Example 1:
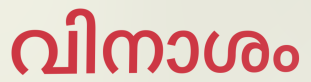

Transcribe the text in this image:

വിനാശം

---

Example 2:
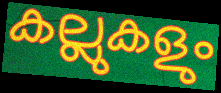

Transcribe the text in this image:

കല്ലുകളും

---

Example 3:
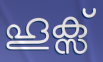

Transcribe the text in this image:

ഹൂക്സ്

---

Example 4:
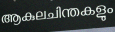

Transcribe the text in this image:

ആകുലചിന്തകളും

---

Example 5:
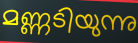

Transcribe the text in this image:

മണ്ണടിയുന്നു